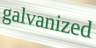
galvanized